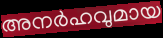
അനർഹവുമായ